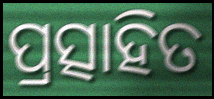
ପ୍ରତ୍ସାହିତ